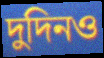
দুদিনও